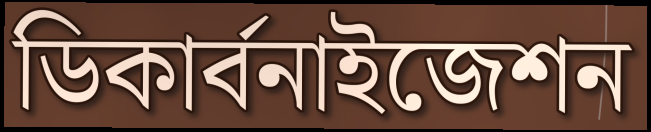
ডিকার্বনাইজেশন